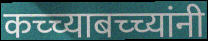
कच्च्याबच्च्यांनी